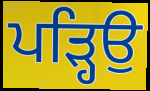
ਪੜ੍ਹਿਉ